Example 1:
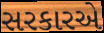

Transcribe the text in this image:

સરકારએ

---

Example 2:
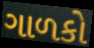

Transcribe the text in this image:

ગાળકો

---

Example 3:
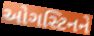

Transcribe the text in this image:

ઓગસ્ટિનને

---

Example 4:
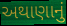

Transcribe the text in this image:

અથાણાનું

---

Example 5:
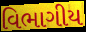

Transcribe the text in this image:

વિભાગીય